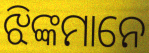
ଝିଙ୍କମାନେ